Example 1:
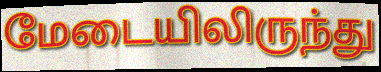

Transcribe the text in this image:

மேடையிலிருந்து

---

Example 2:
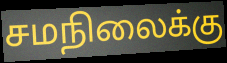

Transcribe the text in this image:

சமநிலைக்கு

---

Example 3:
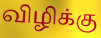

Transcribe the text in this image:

விழிக்கு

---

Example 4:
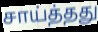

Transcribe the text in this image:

சாய்த்தது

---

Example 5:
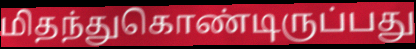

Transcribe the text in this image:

மிதந்துகொண்டிருப்பது